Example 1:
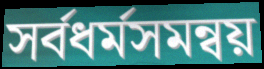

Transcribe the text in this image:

সর্বধর্মসমন্বয়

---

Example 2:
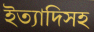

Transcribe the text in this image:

ইত্যাদিসহ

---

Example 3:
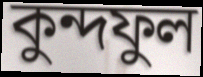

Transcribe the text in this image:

কুন্দফুল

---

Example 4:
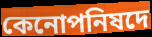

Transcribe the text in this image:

কেনোপনিষদে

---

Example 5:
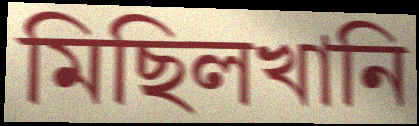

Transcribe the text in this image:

মিছিলখানি